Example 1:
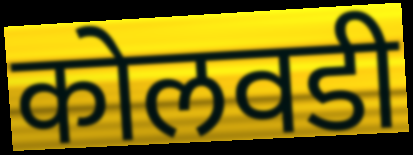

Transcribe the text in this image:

कोलवडी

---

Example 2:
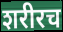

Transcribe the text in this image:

शरीरच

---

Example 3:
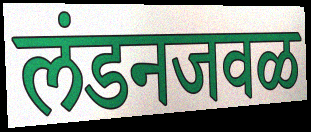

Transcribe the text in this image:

लंडनजवळ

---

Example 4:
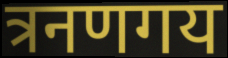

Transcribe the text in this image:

त्रनणगय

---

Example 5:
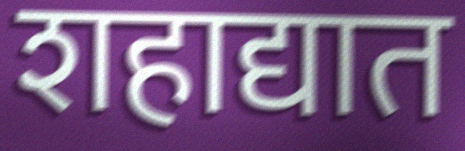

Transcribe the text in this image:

शहाद्यात